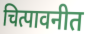
चित्पावनीत